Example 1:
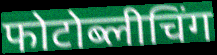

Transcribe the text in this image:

फोटोब्लीचिंग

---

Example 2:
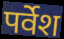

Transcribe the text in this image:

पर्वेश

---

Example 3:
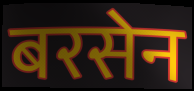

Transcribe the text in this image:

बरसेन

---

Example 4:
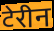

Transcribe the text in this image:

टेरीन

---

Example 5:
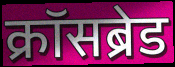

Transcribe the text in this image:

क्रॉसब्रेड